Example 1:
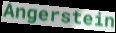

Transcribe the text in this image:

Angerstein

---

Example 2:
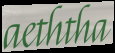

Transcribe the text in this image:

aeththa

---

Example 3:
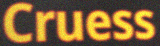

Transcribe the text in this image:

Cruess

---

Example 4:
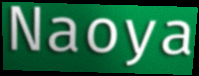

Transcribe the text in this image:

Naoya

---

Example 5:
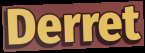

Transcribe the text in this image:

Derret